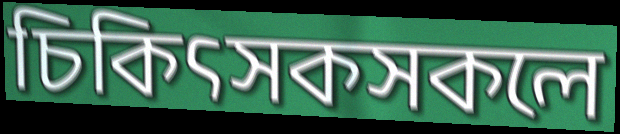
চিকিৎসকসকলে